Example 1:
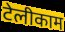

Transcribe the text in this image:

टेलीकाम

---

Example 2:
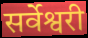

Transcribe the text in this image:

सर्वेश्वरी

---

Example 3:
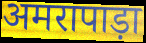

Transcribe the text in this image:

अमरापाड़ा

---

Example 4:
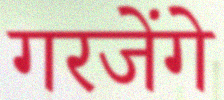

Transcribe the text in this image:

गरजेंगे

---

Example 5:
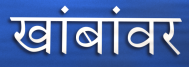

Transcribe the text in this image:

खांबांवर